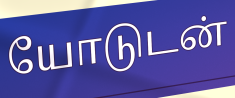
யோடுடன்